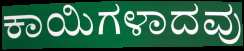
ಕಾಯಿಗಳಾದವು